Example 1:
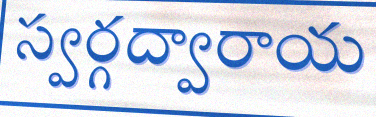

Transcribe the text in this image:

స్వర్గద్వారాయ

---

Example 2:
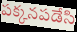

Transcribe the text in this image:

పక్కనపడేసి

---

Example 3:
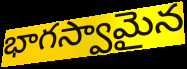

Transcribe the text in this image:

భాగస్వామైన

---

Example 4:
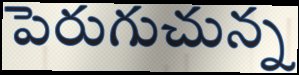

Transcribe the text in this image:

పెరుగుచున్న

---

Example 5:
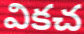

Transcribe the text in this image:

వికచ